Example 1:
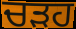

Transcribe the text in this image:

ਚੜਹ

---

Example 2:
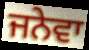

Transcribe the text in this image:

ਜਨੇਵਾ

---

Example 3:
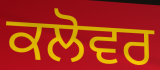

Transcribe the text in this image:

ਕਲੋਵਰ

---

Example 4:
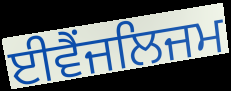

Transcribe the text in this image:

ਈਵੈਂਜਲਿਜਮ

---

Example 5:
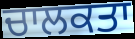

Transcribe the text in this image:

ਚਾਲਕਤਾ